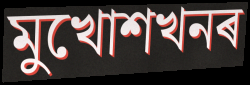
মুখোশখনৰ